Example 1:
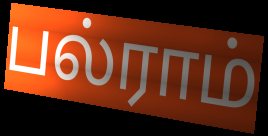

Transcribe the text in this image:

பல்ராம்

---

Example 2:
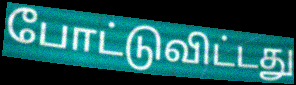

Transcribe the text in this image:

போட்டுவிட்டது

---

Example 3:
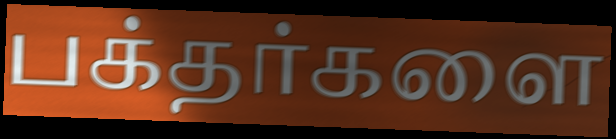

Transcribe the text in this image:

பக்தர்களை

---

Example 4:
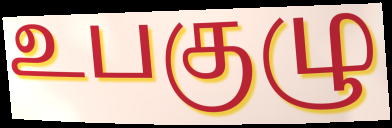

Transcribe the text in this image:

உபகுழு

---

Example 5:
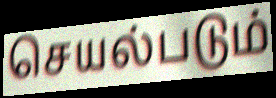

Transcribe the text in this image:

செயல்படும்